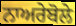
ਨਾਅਰੇਬੋਲੇ